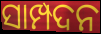
ସାମ୍ପଦନ